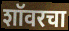
शॉवरचा